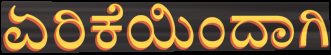
ಏರಿಕೆಯಿಂದಾಗಿ